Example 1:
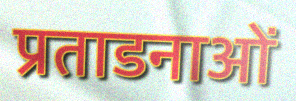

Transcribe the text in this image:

प्रताडनाओं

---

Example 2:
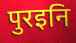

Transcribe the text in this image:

पुरइनि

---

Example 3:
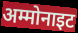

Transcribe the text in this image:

अम्मोनाइट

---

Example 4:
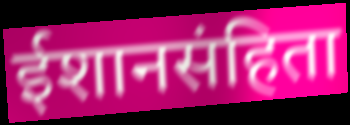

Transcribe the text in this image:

ईशानसंहिता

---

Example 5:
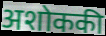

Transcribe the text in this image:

अशोककी